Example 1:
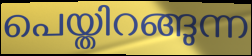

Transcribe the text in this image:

പെയ്തിറങ്ങുന്ന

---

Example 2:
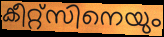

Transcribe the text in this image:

കീറ്റ്സിനെയും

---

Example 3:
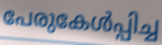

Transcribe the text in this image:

പേരുകേൾപ്പിച്ച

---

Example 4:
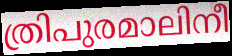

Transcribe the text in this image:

ത്രിപുരമാലിനീ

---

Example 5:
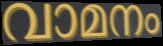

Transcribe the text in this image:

വാമനം